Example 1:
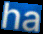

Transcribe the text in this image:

ha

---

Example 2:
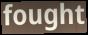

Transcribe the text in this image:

fought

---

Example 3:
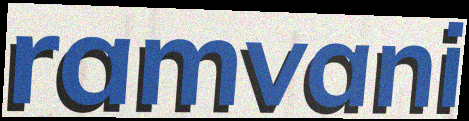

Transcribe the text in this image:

ramvani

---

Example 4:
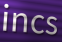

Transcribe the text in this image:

incs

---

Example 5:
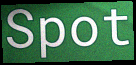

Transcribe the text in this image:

Spot